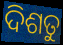
ଦିଶତୁ